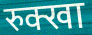
रुक्खा